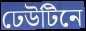
ঢেউটিনে